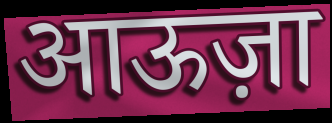
आऊज़ा